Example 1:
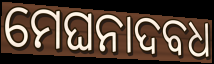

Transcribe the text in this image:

ମେଘନାଦବଧ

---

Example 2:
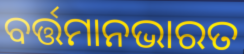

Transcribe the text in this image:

ବର୍ତ୍ତମାନଭାରତ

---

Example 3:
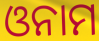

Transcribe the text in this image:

ଓନାମ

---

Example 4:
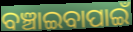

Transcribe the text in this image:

ବଞ୍ଚାଇବାପାଇଁ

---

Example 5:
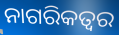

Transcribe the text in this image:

ନାଗରିକତ୍ଵର